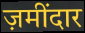
ज़मींदार